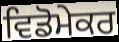
ਵਿਡੋਮੇਕਰ